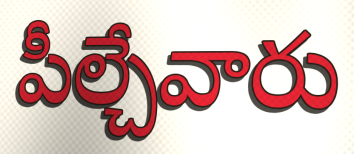
పీల్చేవారు